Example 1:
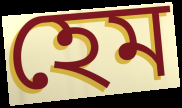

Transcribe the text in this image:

হেম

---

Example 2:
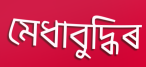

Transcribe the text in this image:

মেধাবুদ্ধিৰ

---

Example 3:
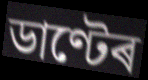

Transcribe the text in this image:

ডাণ্টেৰ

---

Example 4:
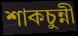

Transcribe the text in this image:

শাকচুন্নী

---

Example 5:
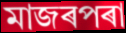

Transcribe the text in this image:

মাজৰপৰা